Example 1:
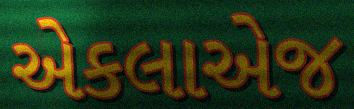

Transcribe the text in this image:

એકલાએજ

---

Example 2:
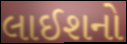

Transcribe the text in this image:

લાઈશનો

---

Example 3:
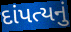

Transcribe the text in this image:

દાંપત્યનું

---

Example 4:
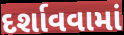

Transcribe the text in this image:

દર્શાવવામાં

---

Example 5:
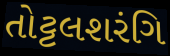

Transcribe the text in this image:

તોટ્ટલશરંગિ